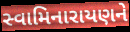
સ્વામિનારાયણને